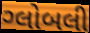
ગ્લોબલી